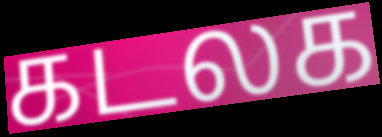
கடலக